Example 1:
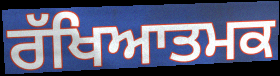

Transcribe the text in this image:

ਰੱਖਿਆਤਮਕ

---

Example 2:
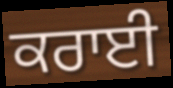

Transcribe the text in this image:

ਕਰਾਈ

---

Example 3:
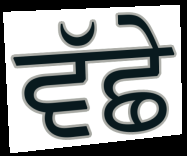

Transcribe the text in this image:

ਵੱਛੇ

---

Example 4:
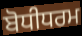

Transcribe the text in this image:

ਬੋਧੀਧਰਮ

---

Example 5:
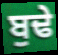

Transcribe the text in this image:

ਬੁਢੇ